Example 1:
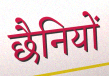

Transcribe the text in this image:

छैनियों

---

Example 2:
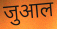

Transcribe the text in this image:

जुआल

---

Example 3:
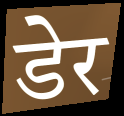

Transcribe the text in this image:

डेर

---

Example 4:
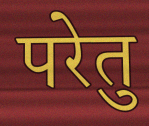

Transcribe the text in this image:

परेतु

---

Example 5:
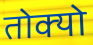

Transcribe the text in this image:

तोक्‍यो